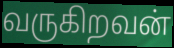
வருகிறவன்